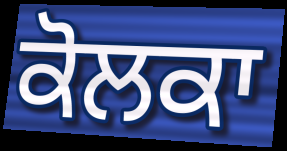
ਕੋਲਕਾ